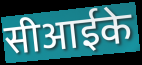
सीआईके